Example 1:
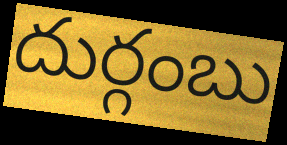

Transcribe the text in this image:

దుర్గంబు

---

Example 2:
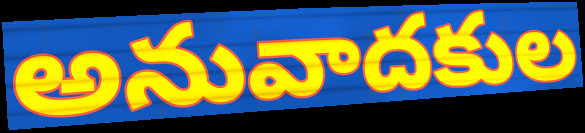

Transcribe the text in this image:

అనువాదకుల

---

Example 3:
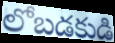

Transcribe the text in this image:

లోబడకుడి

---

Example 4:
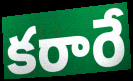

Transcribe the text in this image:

కరారే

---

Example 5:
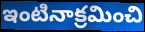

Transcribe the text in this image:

ఇంటినాక్రమించి